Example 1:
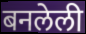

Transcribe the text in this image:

बनलेली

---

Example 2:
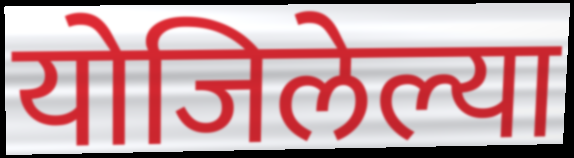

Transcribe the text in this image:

योजिलेल्या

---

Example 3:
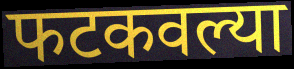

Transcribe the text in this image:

फटकवल्या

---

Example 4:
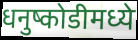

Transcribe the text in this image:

धनुष्कोडीमध्ये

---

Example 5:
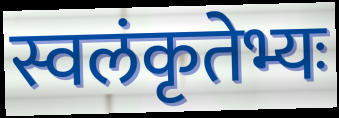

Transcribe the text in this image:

स्वलंकृतेभ्यः